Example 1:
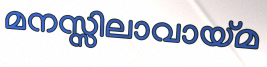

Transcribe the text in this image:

മനസ്സിലാവായ്മ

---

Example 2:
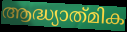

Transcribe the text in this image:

ആദ്ധ്യാത്‌മിക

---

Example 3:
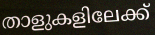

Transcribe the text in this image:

താളുകളിലേക്ക്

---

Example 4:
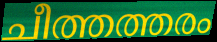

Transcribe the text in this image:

ചീത്തത്തരം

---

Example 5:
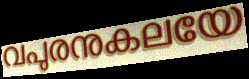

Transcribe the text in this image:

വപുരനുകലയേ